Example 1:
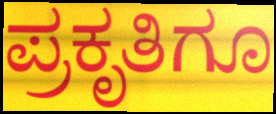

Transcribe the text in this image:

ಪ್ರಕೃತಿಗೂ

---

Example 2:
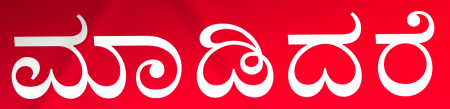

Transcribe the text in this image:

ಮಾಡಿದರೆ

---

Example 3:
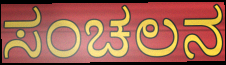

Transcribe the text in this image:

ಸಂಚಲನ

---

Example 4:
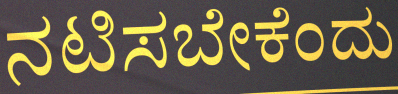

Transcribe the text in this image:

ನಟಿಸಬೇಕೆಂದು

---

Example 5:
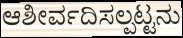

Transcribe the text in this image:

ಆಶೀರ್ವದಿಸಲ್ಪಟ್ಟನು